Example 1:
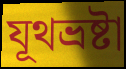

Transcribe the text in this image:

যূথভ্রষ্টা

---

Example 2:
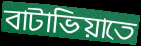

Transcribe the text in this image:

বাটাভিয়াতে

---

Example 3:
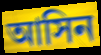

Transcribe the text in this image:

আসিন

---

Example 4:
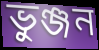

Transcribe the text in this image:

ভুঞ্জন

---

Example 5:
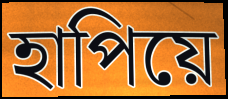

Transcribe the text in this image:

হাপিয়ে